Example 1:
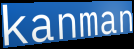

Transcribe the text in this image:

kanman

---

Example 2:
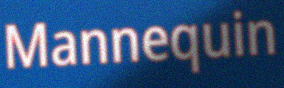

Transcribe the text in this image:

Mannequin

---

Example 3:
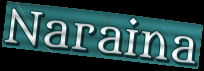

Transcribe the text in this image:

Naraina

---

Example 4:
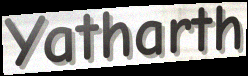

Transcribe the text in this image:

Yatharth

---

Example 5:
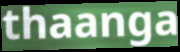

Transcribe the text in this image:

thaanga